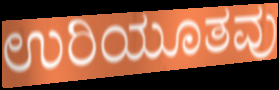
ಉರಿಯೂತವು